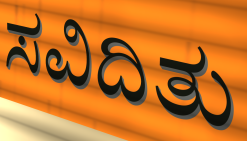
ಸವಿದಿತು